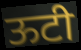
ऊटी